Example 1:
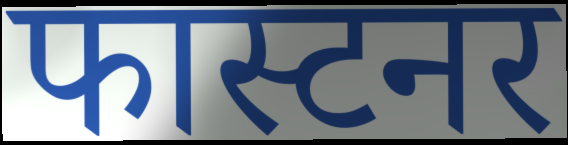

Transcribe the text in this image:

फास्टनर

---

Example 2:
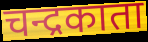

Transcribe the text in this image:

चन्द्रकाता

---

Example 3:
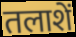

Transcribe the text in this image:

तलाशें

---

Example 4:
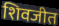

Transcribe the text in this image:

शिवजीत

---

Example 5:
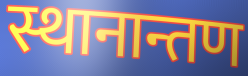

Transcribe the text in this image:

स्थानान्तण